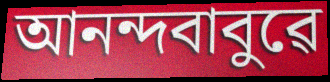
আনন্দবাবুৱে